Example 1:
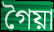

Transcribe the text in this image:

গৈয়া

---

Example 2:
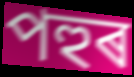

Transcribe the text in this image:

পহুৰ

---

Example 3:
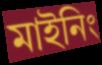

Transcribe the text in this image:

মাইনিং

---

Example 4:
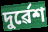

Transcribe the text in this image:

দুৰ্ৱেশ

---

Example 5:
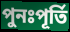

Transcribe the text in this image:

পুনঃপূৰ্তি